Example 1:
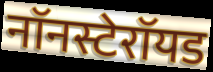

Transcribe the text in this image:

नॉनस्टेरॉयड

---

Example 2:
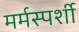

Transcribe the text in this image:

मर्मस्पर्शी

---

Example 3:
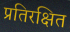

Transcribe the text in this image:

प्रतिरक्षित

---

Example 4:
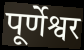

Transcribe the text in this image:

पूर्णेश्वर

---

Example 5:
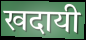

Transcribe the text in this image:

खदायी